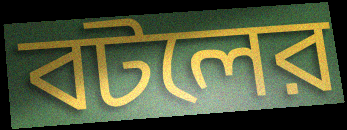
বটলের